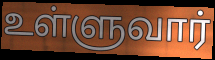
உள்ளுவார்